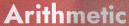
Arithmetic